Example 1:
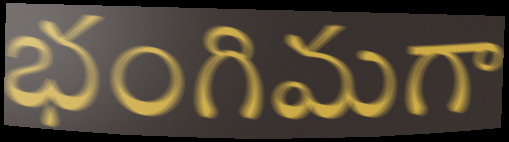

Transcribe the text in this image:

భంగిమగా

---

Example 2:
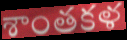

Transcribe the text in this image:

శాంతకళ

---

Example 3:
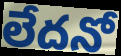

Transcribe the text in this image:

లేదనో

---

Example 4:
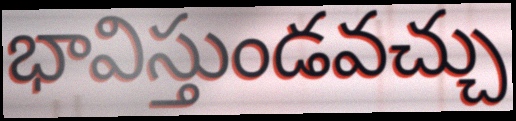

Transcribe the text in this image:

భావిస్తుండవచ్చు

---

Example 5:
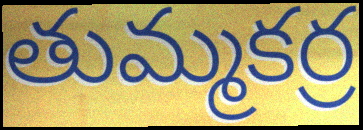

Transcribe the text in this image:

తుమ్మకర్ర